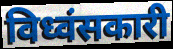
विध्वंसकारी